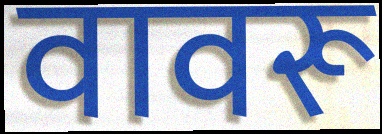
वावरू